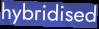
hybridised